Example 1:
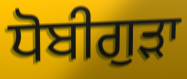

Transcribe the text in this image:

ਧੋਬੀਗੁੜਾ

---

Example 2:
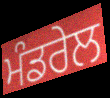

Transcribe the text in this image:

ਮੰਡਰੇਲ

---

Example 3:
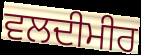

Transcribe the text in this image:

ਵਲਦੀਮੀਰ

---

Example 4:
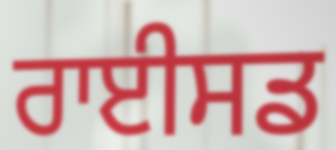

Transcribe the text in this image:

ਰਾਈਸਡ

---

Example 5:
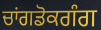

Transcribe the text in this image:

ਚਾਂਗਡੋਕਗੰਗ